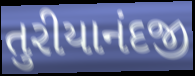
તુરીયાનંદજી